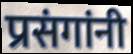
प्रसंगांनी